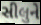
સીલુને